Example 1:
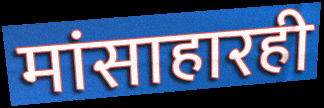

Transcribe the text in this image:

मांसाहारही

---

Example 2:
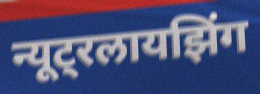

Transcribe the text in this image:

न्यूट्रलायझिंग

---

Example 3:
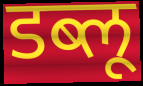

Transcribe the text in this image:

डब्लू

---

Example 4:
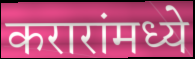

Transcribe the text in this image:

करारांमध्ये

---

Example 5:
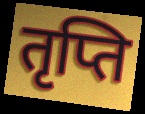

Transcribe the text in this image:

तृप्ति